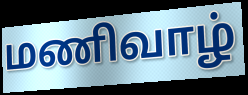
மணிவாழ்